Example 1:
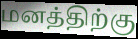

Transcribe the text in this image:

மனத்திற்கு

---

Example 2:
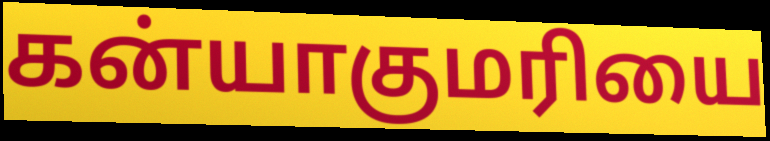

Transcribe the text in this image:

கன்யாகுமரியை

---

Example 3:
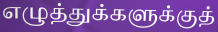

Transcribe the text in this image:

எழுத்துக்களுக்குத்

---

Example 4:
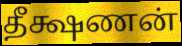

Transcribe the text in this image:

தீக்ஷணன்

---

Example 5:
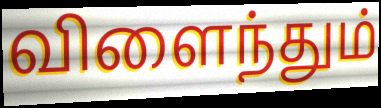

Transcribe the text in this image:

விளைந்தும்